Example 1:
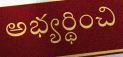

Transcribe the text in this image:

అభ్యర్థించి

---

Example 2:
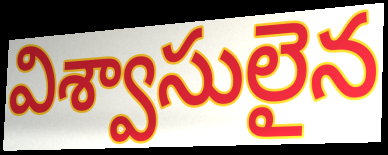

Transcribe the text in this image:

విశ్వాసులైన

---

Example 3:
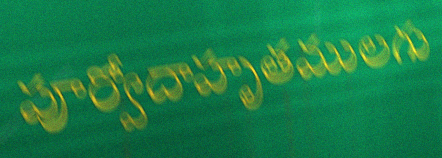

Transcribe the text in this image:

పూర్వోదాహృతములగు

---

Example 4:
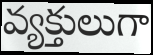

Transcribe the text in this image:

వ్యక్తులుగా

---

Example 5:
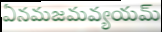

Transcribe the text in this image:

ఏనమజమవ్యయమ్